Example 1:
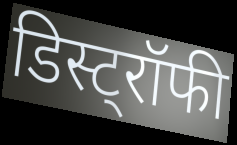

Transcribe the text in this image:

डिस्ट्रॉफी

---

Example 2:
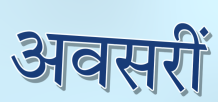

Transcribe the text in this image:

अवसरीं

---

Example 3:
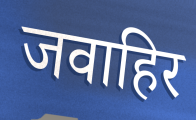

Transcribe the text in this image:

जवाहिर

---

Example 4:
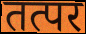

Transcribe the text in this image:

तत्पर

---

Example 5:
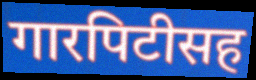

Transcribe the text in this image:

गारपिटीसह